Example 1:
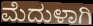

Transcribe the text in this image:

ಮೆದುಳಾಗಿ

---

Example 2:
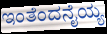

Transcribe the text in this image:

ಇಂತೆಂದನೈಯ್ಯ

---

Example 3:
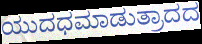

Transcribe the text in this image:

ಯುದಧಮಾಡುತ್ರಾದದ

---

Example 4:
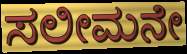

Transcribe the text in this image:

ಸಲೀಮನೇ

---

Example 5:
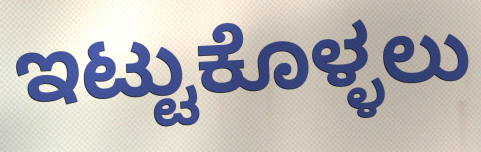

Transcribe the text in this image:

ಇಟ್ಟುಕೊಳ್ಳಲು